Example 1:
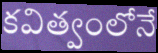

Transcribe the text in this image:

కవిత్వంలోనే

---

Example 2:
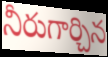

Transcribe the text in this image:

నీరుగార్చిన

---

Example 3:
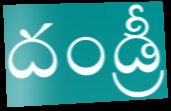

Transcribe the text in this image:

దండ్రీ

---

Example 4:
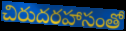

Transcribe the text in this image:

చిరుదరహాసంతో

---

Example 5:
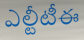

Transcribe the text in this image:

ఎల్టీటీఈ